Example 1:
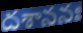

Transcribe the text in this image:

దశాననః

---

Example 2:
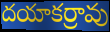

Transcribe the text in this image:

దయాకర్రావు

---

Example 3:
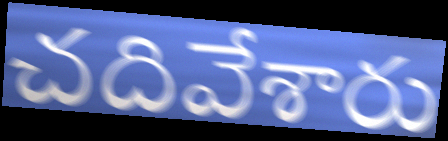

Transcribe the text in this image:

చదివేశారు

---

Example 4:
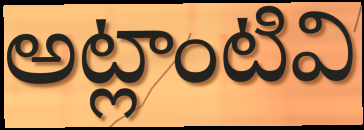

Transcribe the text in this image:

అట్లాంటివి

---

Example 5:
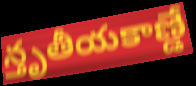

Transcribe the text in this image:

న్తృతీయకాణ్డే